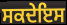
ਸਕਦੇਇਸ